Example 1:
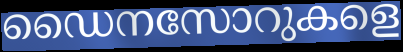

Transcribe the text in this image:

ഡൈനസോറുകളെ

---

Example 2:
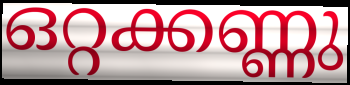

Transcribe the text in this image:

ഒറ്റക്കണ്ണു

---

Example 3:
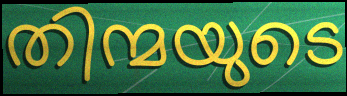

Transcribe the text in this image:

തിന്മയുടെ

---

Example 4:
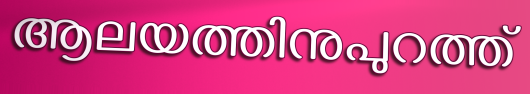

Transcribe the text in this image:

ആലയത്തിനുപുറത്ത്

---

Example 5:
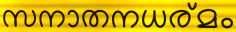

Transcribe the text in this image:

സനാതനധര്മം